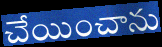
చేయించాను